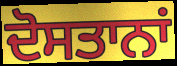
ਦੋਸਤਾਨਾਂ